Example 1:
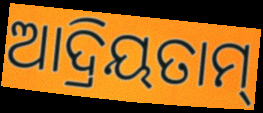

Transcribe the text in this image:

ଆଦ୍ରିୟତାମ୍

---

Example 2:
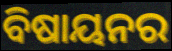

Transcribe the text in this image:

ବିଷାୟନର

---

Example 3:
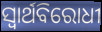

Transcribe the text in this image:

ସ୍ବାର୍ଥବିରୋଧୀ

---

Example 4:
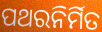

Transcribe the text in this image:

ପଥରନିର୍ମିତ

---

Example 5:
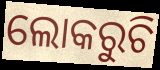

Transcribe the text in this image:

ଲୋକରୁଚି